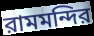
রামমন্দির